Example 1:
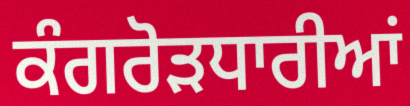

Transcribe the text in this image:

ਕੰਗਰੋੜਧਾਰੀਆਂ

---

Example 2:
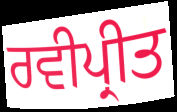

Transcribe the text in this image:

ਰਵੀਪ੍ਰੀਤ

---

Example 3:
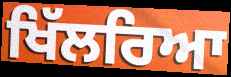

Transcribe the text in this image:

ਖਿੱਲਰਿਆ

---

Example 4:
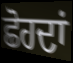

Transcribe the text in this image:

ਛੋਹਦਾਂ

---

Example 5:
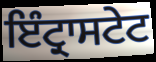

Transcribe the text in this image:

ਇੰਟ੍ਰਾਸਟੇਟ